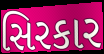
સિરકાર